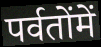
पर्वतोंमें